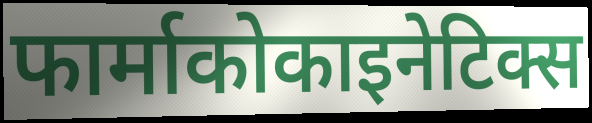
फार्माकोकाइनेटिक्स